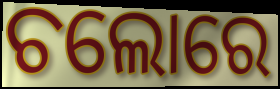
ଚଲୋରେ